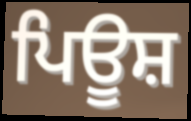
ਪਿਊਸ਼